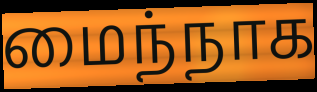
மைந்நாக